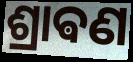
ଶ୍ରାଵଣ